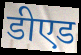
डीएड